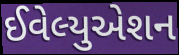
ઈવેલ્યુએશન